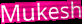
Mukesh